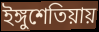
ইঙ্গুশেতিয়ায়